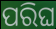
ପରିଘ